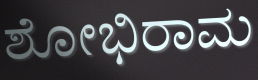
ಶೋಭಿರಾಮ